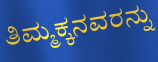
ತಿಮ್ಮಕ್ಕನವರನ್ನು